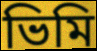
ভিমি